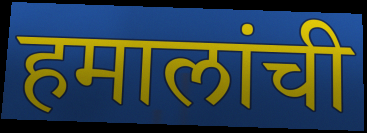
हमालांची